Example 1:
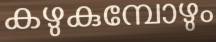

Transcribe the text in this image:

കഴുകുമ്പോഴും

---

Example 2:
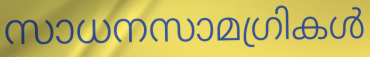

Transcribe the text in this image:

സാധനസാമഗ്രികൾ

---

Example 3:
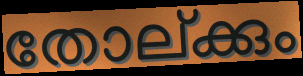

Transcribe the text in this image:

തോല്ക്കും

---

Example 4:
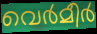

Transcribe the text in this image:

വെർമീർ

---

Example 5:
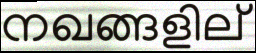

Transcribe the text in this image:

നഖങ്ങളില്